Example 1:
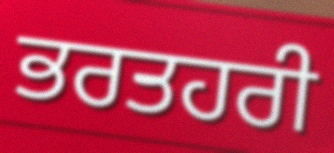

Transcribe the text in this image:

ਭਰਤਹਰੀ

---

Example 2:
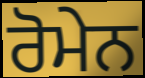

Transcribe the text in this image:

ਰੋਮੇਨ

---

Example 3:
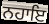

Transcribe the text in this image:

ਨਹਾਇ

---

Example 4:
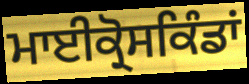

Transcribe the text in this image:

ਮਾਈਕ੍ਰੋਸਕਿੰਡਾਂ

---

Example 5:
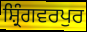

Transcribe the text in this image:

ਸ਼੍ਰਿੰਗਵਰਪੁਰ